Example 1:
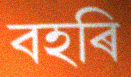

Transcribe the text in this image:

বহৰি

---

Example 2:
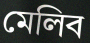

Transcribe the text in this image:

মেলিব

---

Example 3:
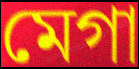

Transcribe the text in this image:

মেগা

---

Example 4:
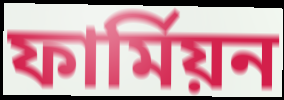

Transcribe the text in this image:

ফাৰ্মিয়ন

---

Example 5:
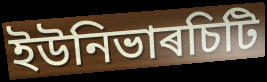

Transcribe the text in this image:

ইউনিভাৰচিটি